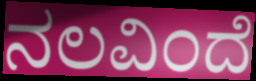
ನಲವಿಂದೆ